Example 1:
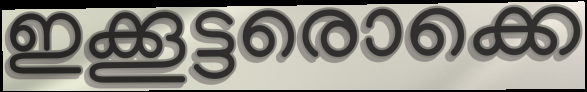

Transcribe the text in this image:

ഇക്കൂട്ടരൊക്കെ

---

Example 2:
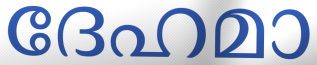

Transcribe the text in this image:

ദേഹമാ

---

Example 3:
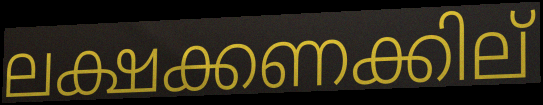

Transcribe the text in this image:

ലക്ഷക്കണക്കില്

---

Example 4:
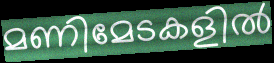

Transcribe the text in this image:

മണിമേടകളിൽ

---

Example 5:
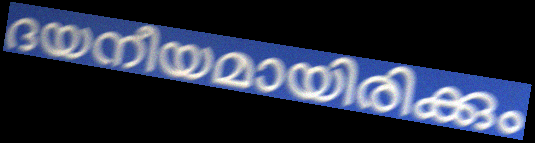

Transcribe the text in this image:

ദയനീയമായിരിക്കും